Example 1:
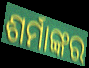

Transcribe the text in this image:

ଶର୍ମାଙ୍କର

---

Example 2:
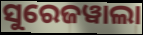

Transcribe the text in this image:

ସୁରେଜୱାଲା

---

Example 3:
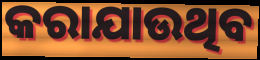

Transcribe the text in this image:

କରାଯାଉଥିବ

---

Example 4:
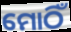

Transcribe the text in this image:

ମୋଠିଁ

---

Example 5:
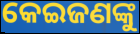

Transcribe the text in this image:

କେଇଜଣଙ୍କୁ